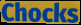
Chocks